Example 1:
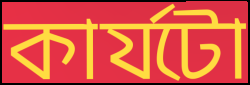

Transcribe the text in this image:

কাৰ্যটো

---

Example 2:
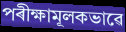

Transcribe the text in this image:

পৰীক্ষামূলকভাৱে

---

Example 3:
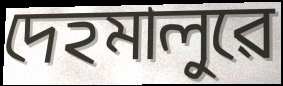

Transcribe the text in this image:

দেহমালুৱে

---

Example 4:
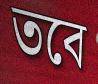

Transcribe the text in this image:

তবে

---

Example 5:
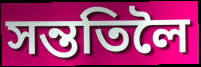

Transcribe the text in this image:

সন্ততিলৈ